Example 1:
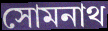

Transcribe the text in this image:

সোমনাথ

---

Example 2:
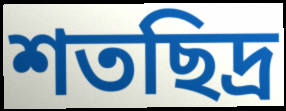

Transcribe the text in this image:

শতছিদ্র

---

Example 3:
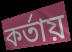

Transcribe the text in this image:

কর্তায়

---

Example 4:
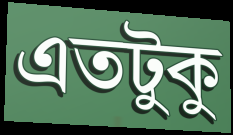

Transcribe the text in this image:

এতটুকু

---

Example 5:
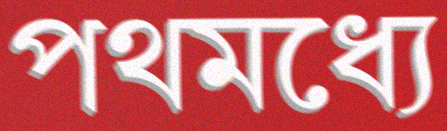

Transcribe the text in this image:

পথমধ্যে